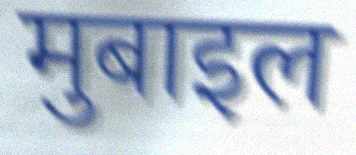
मुबाइल